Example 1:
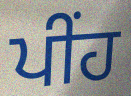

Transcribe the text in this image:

ਪੀਂਹ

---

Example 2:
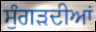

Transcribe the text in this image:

ਸੁੰਗੜਦੀਆਂ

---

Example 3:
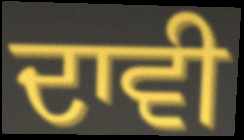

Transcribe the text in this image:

ਦਾਵੀ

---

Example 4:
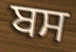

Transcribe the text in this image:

ਬਸ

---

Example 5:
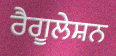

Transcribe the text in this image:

ਰੈਗੂਲੇਸ਼ਨ